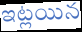
ఇట్లయిన